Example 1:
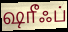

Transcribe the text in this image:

ஷரீஃப்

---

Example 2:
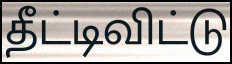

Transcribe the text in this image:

தீட்டிவிட்டு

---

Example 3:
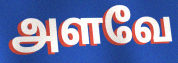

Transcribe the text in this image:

அளவே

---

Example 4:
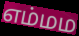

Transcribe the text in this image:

எம்மம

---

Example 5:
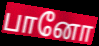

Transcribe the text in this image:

பானோ